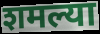
शमल्या